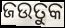
ଜଉତୁକ